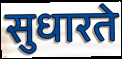
सुधारते